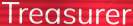
Treasurer